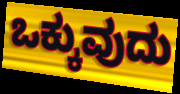
ಒಕ್ಕುವುದು